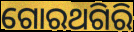
ଗୋରଥଗିରି